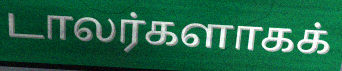
டாலர்களாகக்